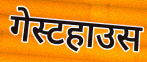
गेस्टहाउस